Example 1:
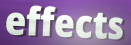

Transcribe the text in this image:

effects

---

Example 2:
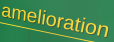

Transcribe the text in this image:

amelioration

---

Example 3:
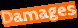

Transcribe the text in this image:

Damages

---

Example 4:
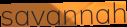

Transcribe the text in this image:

savannah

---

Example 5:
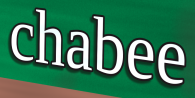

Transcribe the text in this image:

chabee